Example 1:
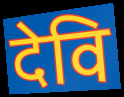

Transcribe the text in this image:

देवि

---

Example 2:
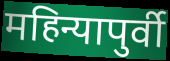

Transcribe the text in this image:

महिन्यापुर्वी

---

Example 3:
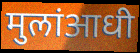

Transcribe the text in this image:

मुलांआधी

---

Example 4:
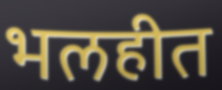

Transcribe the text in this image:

भलहीत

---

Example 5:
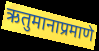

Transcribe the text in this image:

ऋतुमानाप्रमाणे